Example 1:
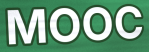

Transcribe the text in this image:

MOOC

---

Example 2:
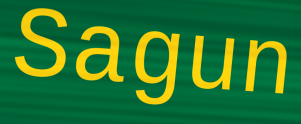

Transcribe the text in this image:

Sagun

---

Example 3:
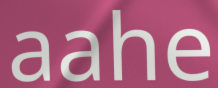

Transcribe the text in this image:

aahe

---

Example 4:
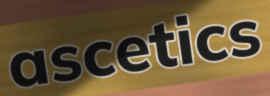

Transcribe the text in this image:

ascetics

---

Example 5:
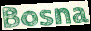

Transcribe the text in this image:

Bosna